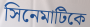
সিনেমাটিকে